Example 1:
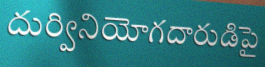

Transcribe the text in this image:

దుర్వినియోగదారుడిపై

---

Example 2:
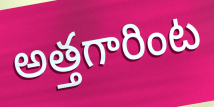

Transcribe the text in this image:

అత్తగారింట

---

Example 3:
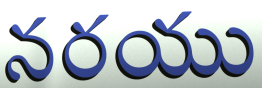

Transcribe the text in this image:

నరయు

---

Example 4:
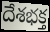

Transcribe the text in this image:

దేశభక్త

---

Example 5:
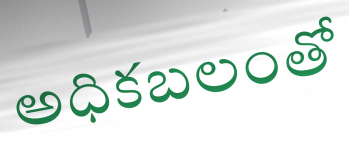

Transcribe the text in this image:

అధికబలంతో